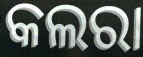
କଲରା